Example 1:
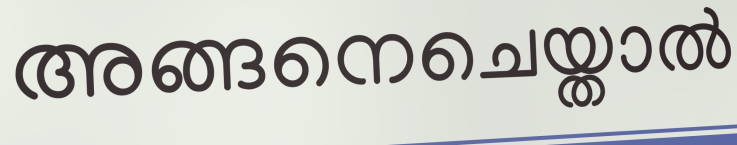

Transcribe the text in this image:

അങ്ങനെചെയ്താൽ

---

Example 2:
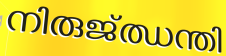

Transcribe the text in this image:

നിരുജ്ഝന്തി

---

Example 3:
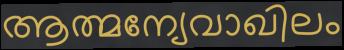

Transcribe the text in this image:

ആത്മന്യേവാഖിലം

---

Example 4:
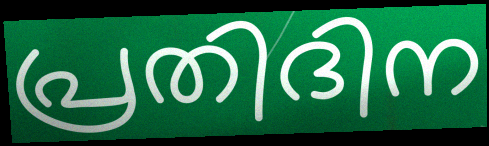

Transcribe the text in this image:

പ്രതിദിന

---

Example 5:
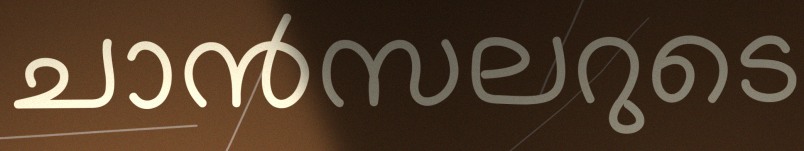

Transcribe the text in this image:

ചാൻസലറുടെ